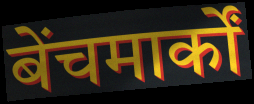
बेंचमार्कों